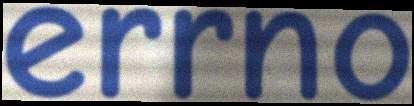
errno